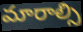
మారాల్సి